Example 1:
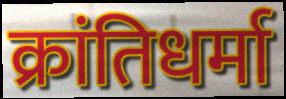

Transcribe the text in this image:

क्रांतिधर्मा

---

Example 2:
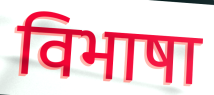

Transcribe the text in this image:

विभाषा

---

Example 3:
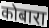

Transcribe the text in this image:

कोबारा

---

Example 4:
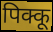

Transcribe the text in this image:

पिक्कू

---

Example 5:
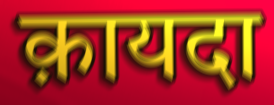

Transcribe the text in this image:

क़ायदा